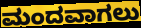
ಮಂದವಾಗಲು